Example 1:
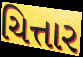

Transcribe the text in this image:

ચિત્તાર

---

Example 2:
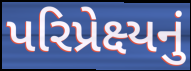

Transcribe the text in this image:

પરિપ્રેક્ષ્યનું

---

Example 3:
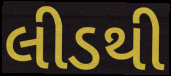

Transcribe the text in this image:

લીડથી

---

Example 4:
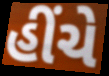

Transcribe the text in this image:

હીંચે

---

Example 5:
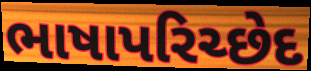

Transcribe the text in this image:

ભાષાપરિચ્છેદ